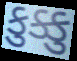
કુક્કુ